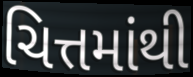
ચિત્તમાંથી